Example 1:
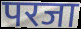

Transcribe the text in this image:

परजा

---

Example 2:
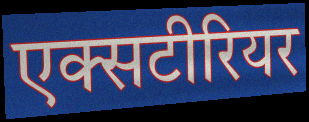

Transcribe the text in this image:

एक्‍सटीरियर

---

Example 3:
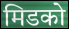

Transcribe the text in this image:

मिडको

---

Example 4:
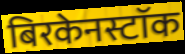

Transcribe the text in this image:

बिरकेनस्टॉक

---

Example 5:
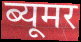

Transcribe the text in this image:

ब्यूमर